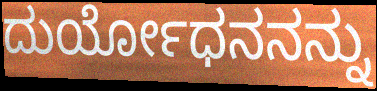
ದುರ್ಯೋಧನನನ್ನು